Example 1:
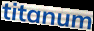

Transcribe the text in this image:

titanum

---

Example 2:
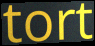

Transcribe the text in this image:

tort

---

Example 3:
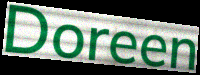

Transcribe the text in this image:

Doreen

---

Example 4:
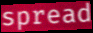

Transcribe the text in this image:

spread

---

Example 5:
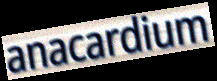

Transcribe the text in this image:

anacardium